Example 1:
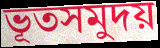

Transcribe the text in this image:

ভূতসমুদয়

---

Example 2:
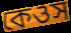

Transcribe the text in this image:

কেওস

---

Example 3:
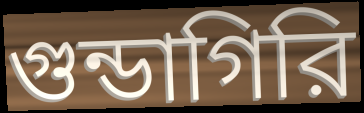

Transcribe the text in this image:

গুন্ডাগিরি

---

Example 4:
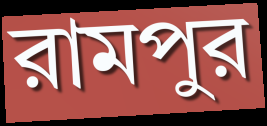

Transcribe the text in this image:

রামপুর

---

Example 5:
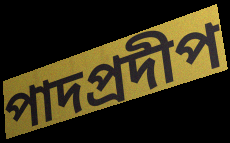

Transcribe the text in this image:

পাদপ্রদীপ